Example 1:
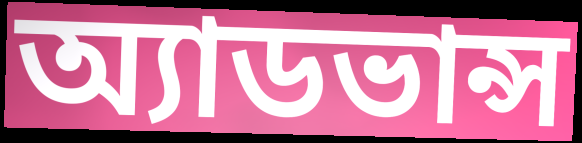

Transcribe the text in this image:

অ্যাডভান্স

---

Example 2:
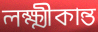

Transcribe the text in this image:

লক্ষ্মীকান্ত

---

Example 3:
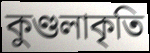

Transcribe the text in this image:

কুণ্ডলাকৃতি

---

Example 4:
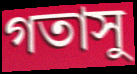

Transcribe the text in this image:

গতাসু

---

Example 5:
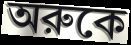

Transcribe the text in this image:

অরুকে